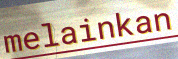
melainkan